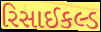
રિસાઈકલ્ડ